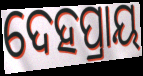
ଦେହପ୍ରାୟ